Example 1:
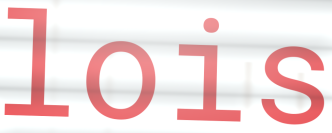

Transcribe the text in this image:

lois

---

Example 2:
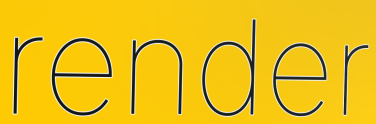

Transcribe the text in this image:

render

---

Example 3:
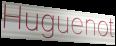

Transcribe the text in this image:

Huguenot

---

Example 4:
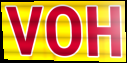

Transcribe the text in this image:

VOH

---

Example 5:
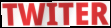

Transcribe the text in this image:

TWITER